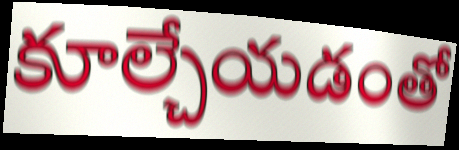
కూల్చేయడంతో